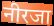
नीरजा